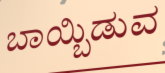
ಬಾಯ್ಬಿಡುವ